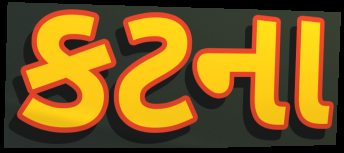
કટના